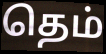
தெம்